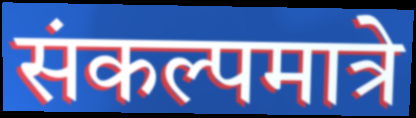
संकल्पमात्रे